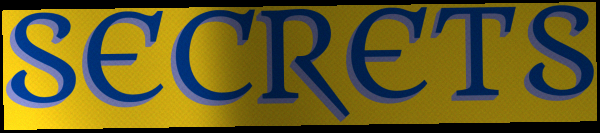
SECRETS